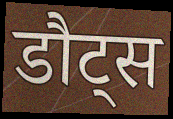
डौट्स